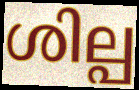
ശില്പ